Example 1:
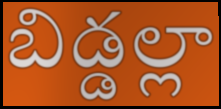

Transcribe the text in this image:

బిడ్డల్లా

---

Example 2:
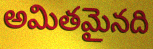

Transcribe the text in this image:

అమితమైనది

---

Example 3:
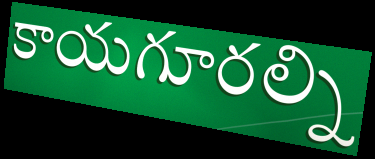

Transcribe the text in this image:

కాయగూరల్ని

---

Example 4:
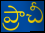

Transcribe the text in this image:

ప్రాచీ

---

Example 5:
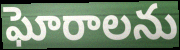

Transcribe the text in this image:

ఘోరాలను